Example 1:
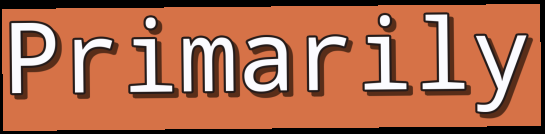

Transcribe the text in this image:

Primarily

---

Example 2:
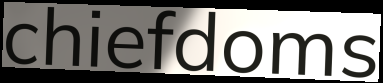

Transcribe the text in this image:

chiefdoms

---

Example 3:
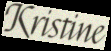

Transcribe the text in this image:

Kristine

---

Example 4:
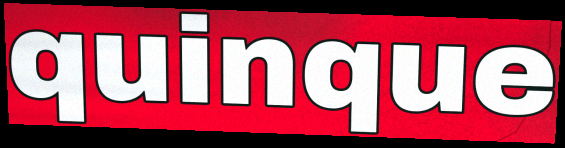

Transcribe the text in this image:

quinque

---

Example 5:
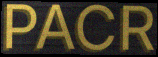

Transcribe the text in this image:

PACR